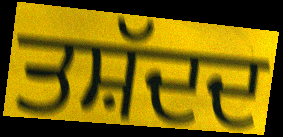
ਤਸ਼ੱਦਦ